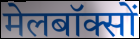
मेलबॉक्सों